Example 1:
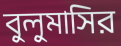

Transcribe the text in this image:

বুলুমাসির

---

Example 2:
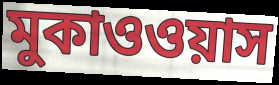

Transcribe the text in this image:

মুকাওওয়াস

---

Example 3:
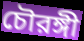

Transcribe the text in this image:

চৌরঙ্গী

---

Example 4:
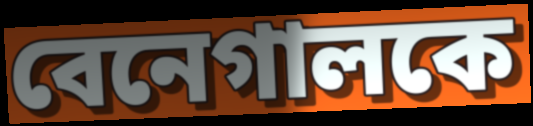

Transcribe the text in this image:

বেনেগালকে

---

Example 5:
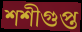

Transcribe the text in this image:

শশীগুপ্ত